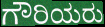
ಗೌರಿಯರು